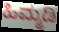
ಹಿಮ್ಮಡಿ